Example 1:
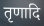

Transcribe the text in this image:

तृणादि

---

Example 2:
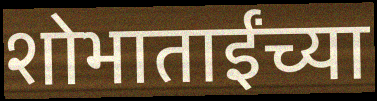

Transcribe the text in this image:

शोभाताईंच्या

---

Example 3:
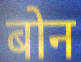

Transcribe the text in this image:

बोन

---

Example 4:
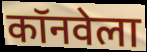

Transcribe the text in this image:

कॉनवेला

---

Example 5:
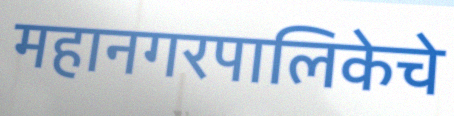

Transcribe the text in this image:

महानगरपालिकेचे